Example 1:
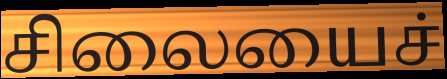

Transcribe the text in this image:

சிலையைச்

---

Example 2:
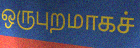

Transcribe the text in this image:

ஒருபுறமாகச்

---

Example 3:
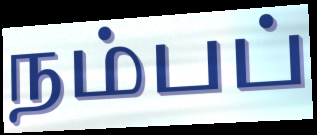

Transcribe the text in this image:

நம்பப்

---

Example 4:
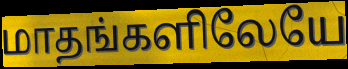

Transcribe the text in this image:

மாதங்களிலேயே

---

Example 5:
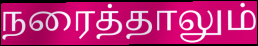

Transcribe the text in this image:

நரைத்தாலும்